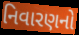
નિવારણનો